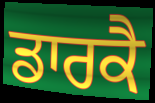
ਡਾਰਕੈ